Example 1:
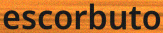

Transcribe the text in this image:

escorbuto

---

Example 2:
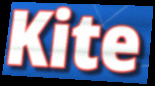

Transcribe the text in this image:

Kite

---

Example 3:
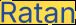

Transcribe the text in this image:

Ratan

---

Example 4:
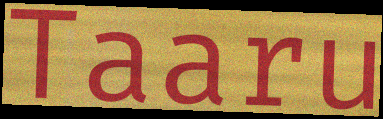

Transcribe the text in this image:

Taaru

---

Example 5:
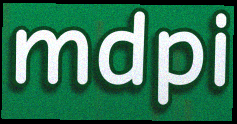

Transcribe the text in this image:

mdpi